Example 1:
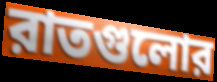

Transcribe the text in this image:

রাতগুলোর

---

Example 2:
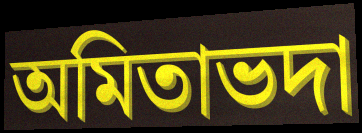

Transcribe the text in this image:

অমিতাভদা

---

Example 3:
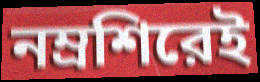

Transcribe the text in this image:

নম্রশিরেই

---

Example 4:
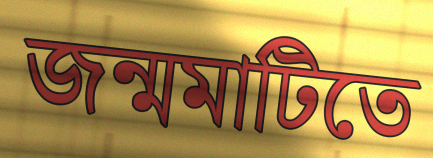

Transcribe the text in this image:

জন্মমাটিতে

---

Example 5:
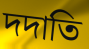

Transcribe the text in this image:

দদাতি